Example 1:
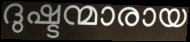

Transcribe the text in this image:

ദുഷ്ടന്മാരായ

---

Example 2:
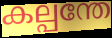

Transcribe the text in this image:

കല്പന്തേ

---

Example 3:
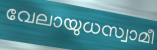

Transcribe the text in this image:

വേലായുധസ്വാമീ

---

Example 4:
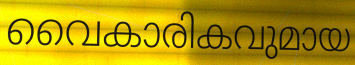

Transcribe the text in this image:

വൈകാരികവുമായ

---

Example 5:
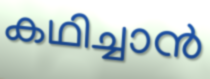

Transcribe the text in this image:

കഥിച്ചാൻ